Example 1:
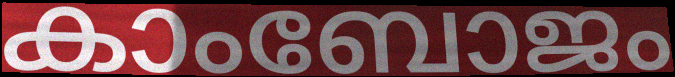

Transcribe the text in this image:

കാംബോജം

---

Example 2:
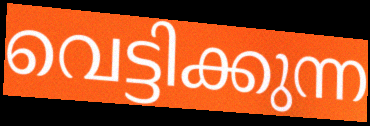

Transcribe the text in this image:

വെട്ടിക്കുന്ന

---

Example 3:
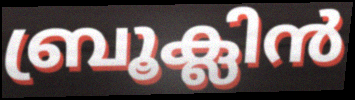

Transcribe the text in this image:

ബ്രൂക്ലിൻ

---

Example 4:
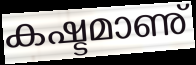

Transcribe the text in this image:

കഷ്ടമാണു്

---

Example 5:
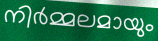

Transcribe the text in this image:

നിർമ്മലമായും